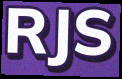
RJS